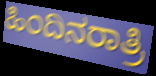
ಹಿಂದಿನರಾತ್ರಿ